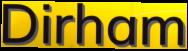
Dirham